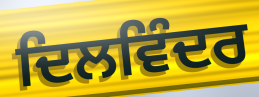
ਦਿਲਵਿੰਦਰ